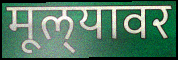
मूल्यावर